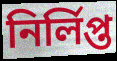
নির্লিপ্ত